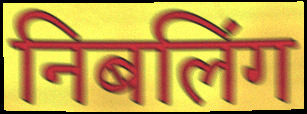
निबलिंग